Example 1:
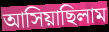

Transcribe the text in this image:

আসিয়াছিলাম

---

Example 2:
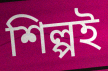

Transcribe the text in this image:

শিল্পই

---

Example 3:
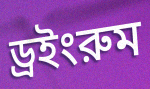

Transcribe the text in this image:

ড্রইংরুম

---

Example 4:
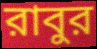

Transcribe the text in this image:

রাবুর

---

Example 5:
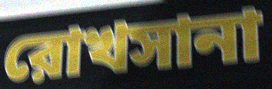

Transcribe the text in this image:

রোখসানা